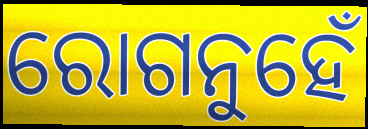
ରୋଗନୁହେଁ